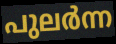
പുലർന്ന